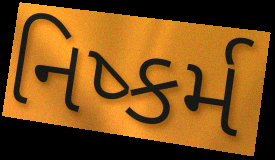
નિષ્કર્મ